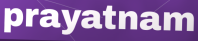
prayatnam